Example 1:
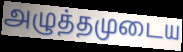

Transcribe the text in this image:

அழுத்தமுடைய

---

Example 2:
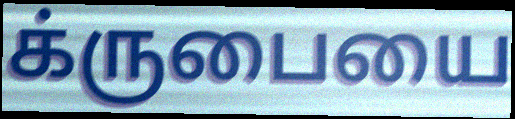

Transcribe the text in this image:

க்ருபையை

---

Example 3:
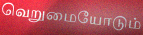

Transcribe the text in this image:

வெறுமையோடும்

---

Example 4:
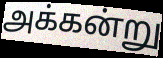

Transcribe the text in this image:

அக்கன்று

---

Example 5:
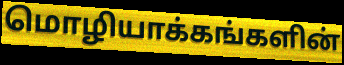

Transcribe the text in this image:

மொழியாக்கங்களின்